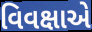
વિવક્ષાએ